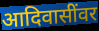
आदिवासींवर